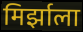
मिर्झाला